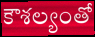
కౌశల్యంతో